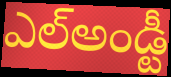
ఎల్అండ్టీ